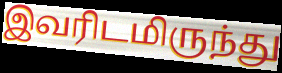
இவரிடமிருந்து